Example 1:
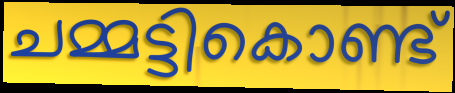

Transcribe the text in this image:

ചമ്മട്ടികൊണ്ട്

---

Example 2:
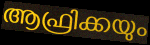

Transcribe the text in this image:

ആഫ്രിക്കയും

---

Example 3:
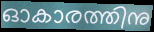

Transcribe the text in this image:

ഓകാരത്തിനു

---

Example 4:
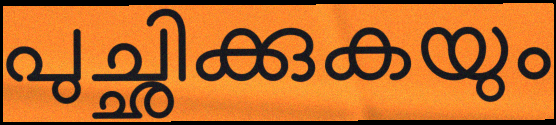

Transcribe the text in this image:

പുച്ഛിക്കുകയും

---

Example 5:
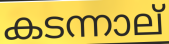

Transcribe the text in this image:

കടന്നാല്